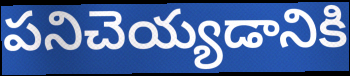
పనిచెయ్యడానికి